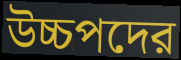
উচ্চপদের